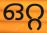
ഒറ്റ